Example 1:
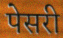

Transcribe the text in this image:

पेसरी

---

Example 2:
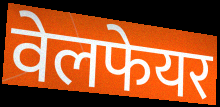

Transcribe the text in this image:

वेलफेयर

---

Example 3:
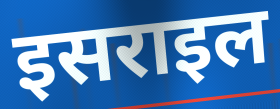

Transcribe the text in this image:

इसराइल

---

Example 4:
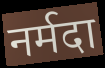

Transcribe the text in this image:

नर्मदा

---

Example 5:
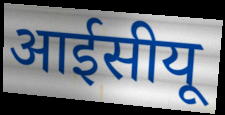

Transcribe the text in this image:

आईसीयू